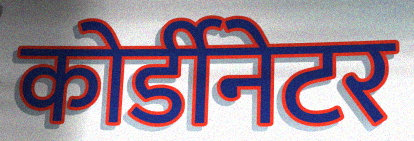
कोर्डीनेटर